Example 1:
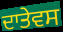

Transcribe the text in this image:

ਦਾਤੇਵਸ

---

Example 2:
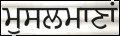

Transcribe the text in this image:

ਮੁਸਲਮਾਣਾਂ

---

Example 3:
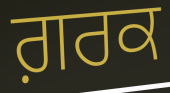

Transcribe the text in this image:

ਗ਼ਰਕ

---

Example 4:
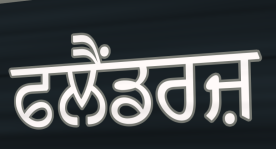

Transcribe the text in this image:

ਫਲੈਂਡਰਜ਼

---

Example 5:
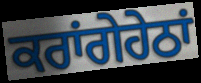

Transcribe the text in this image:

ਕਰਾਂਗੇਹੇਠਾਂ